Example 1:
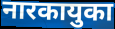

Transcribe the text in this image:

नारकायुका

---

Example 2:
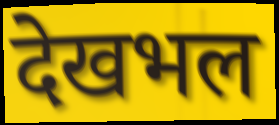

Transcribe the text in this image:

देखभल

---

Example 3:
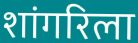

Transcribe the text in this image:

शांगरिला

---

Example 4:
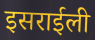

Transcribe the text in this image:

इसराईली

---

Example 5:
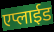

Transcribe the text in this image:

एप्लाईड